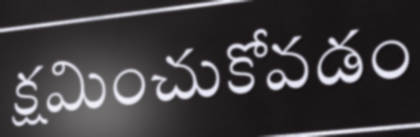
క్షమించుకోవడం